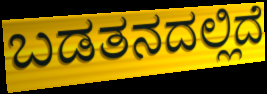
ಬಡತನದಲ್ಲಿದೆ